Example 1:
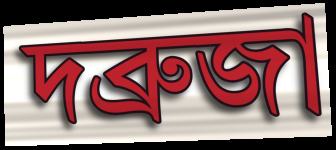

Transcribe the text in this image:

দব্রুজা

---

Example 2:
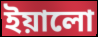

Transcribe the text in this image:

ইয়ালো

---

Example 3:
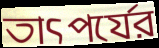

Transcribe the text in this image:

তাৎপর্যের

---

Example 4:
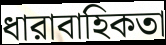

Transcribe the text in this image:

ধারাবাহিকতা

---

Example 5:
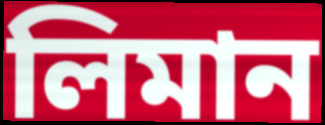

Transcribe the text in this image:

লিমান